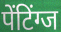
पेंटिंग्ज